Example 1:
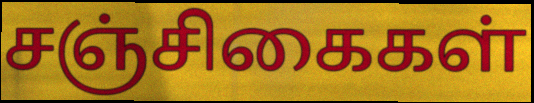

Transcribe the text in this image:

சஞ்சிகைகள்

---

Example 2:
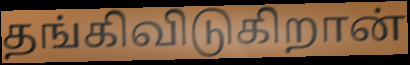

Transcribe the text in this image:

தங்கிவிடுகிறான்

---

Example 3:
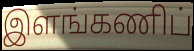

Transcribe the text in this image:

இளங்கணிப்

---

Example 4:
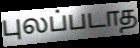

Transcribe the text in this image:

புலப்படாத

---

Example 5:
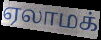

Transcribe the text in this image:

ஏலாமக்